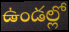
ఉండల్లో